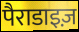
पैराडाइज़